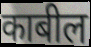
काबील